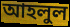
আহলুল